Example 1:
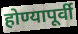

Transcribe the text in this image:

होण्यापूर्वी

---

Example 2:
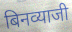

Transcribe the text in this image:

बिनव्याजी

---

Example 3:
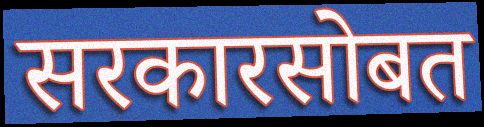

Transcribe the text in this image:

सरकारसोबत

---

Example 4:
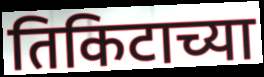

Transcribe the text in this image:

तिकिटाच्या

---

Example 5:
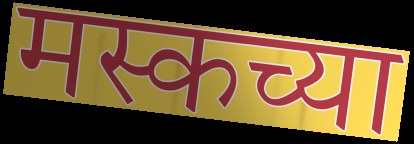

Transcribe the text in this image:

मस्कच्या